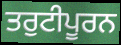
ਤਰੁਟੀਪੂਰਨ